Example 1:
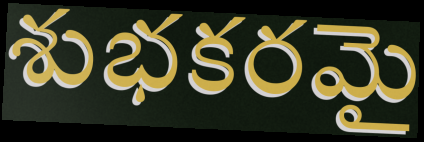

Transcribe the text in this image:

శుభకరమై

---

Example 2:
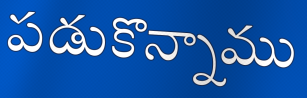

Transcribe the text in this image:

పడుకొన్నాము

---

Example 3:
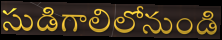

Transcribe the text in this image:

సుడిగాలిలోనుండి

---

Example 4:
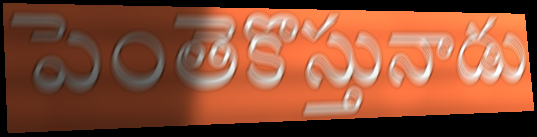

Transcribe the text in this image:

పెంతెకొస్తునాడు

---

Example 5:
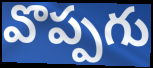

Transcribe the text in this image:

వొప్పగు